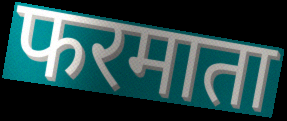
फरमाता